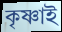
কৃষ্ণাই